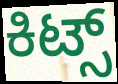
ಕಿಟ್ಸ್